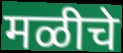
मळीचे